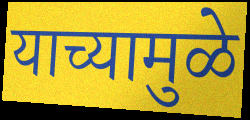
याच्यामुळे